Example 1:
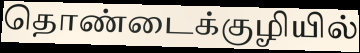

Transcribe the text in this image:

தொண்டைக்குழியில்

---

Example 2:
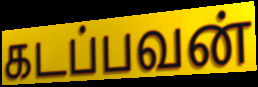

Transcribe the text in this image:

கடப்பவன்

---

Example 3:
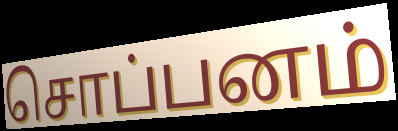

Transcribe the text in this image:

சொப்பனம்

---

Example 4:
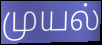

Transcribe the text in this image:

முயல்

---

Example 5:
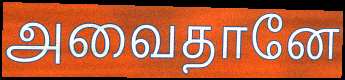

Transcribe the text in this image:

அவைதானே